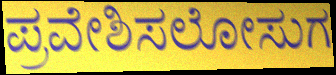
ಪ್ರವೇಶಿಸಲೋಸುಗ